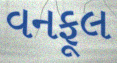
વનફૂલ